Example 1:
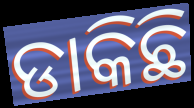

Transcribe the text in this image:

ଡାକିଛି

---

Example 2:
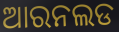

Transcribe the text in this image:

ଆରନଲଡ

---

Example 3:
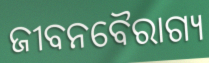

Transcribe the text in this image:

ଜୀବନବୈରାଗ୍ୟ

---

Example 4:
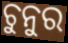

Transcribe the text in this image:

ଚୁନୁର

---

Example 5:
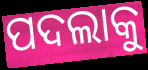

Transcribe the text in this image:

ପଦଲାକୁ